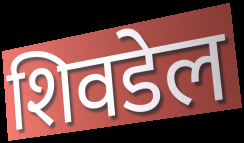
शिवडेल